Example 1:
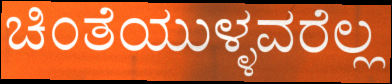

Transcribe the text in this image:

ಚಿಂತೆಯುಳ್ಳವರೆಲ್ಲ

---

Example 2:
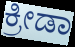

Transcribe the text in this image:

ಕ್ರೀಡಾ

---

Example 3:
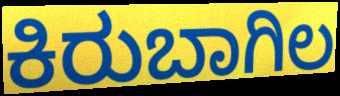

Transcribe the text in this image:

ಕಿರುಬಾಗಿಲ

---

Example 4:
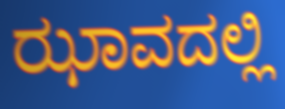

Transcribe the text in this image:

ಝಾವದಲ್ಲಿ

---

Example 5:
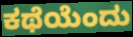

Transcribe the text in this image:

ಕಥೆಯೆಂದು